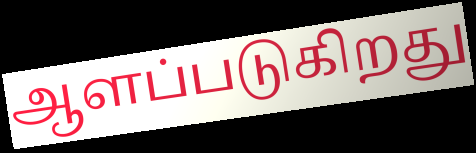
ஆளப்படுகிறது